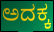
ಅದಕ್ಕ